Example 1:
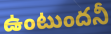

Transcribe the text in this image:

ఉంటుందనీ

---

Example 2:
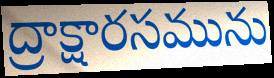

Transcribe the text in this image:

ద్రాక్షారసమును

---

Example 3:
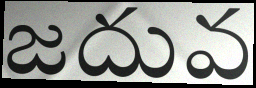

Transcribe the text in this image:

జదువ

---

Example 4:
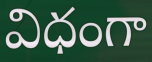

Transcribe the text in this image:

విధంగా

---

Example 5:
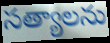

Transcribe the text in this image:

సత్యాలను